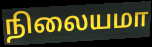
நிலையமா